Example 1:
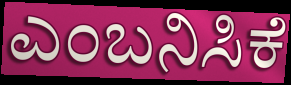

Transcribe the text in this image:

ಎಂಬನಿಸಿಕೆ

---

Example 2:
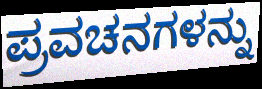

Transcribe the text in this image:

ಪ್ರವಚನಗಳನ್ನು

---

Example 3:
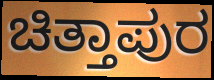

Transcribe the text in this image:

ಚಿತ್ತಾಪುರ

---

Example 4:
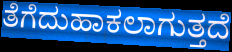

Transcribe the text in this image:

ತೆಗೆದುಹಾಕಲಾಗುತ್ತದೆ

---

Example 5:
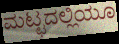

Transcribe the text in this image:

ಮಟ್ಟದಲ್ಲಿಯೂ